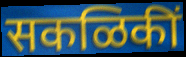
सकळिकीं